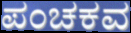
ಪಂಚಕವ